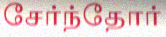
சேர்ந்தோர்